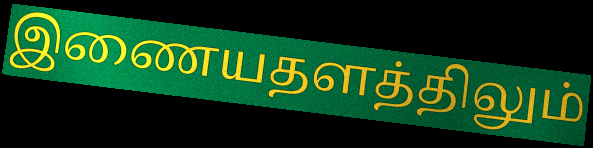
இணையதளத்திலும்